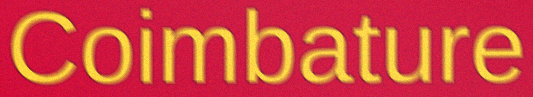
Coimbature